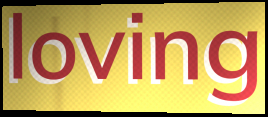
loving